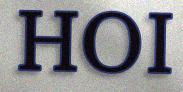
HOI